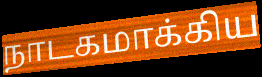
நாடகமாக்கிய